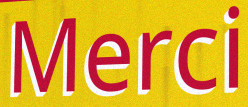
Merci